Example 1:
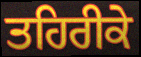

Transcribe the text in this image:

ਤਹਿਰੀਕੇ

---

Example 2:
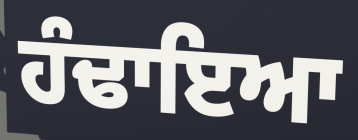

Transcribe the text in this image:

ਹੰਢਾਇਆ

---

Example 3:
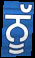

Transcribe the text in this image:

ਨੂੱ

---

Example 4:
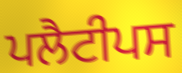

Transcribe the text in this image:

ਪਲੈਟੀਪਸ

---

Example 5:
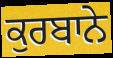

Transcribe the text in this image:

ਕੁਰਬਾਨੇ